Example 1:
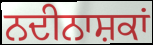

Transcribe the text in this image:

ਨਦੀਨਾਸ਼ਕਾਂ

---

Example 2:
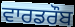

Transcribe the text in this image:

ਵਾਰਡਰੌਬ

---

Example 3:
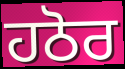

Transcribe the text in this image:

ਹਠੋਰ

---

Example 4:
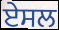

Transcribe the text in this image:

ਏਸਲ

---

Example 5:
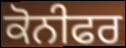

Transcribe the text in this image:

ਕੋਨੀਫਰ